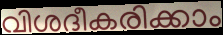
വിശദീകരിക്കാം